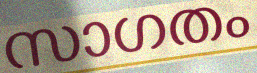
സാഗതം